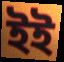
ইই